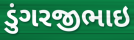
ડુંગરજીભાઇ